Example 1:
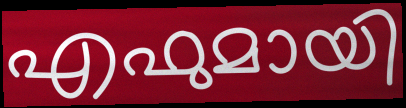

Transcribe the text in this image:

എഫുമായി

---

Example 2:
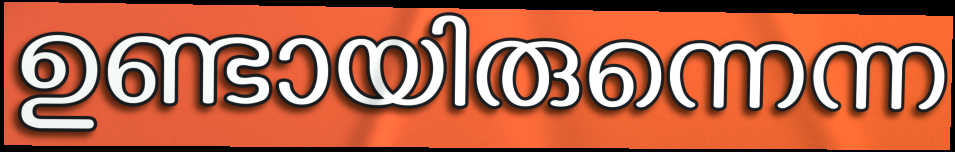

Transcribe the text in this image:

ഉണ്ടായിരുന്നെന്ന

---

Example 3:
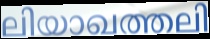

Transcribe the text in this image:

ലിയാഖത്തലി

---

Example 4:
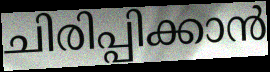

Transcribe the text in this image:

ചിരിപ്പിക്കാൻ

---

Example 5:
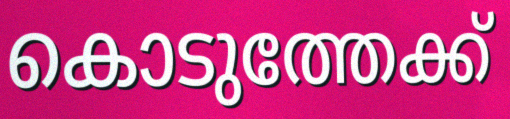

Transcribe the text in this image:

കൊടുത്തേക്ക്